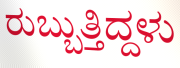
ರುಬ್ಬುತ್ತಿದ್ದಳು